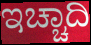
ಇಚ್ಚಾದಿ